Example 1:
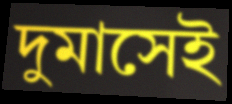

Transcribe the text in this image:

দুমাসেই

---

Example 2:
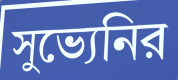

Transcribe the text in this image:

সুভ্যেনির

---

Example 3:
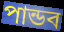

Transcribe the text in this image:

পান্ডব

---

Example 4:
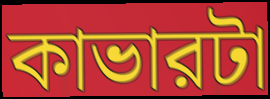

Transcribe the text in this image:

কাভারটা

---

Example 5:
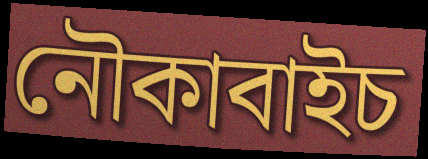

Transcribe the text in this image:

নৌকাবাইচ